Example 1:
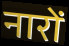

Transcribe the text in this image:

नारों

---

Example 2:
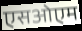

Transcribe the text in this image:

एसओएम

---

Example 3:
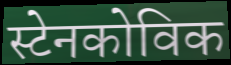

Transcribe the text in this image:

स्टेनकोविक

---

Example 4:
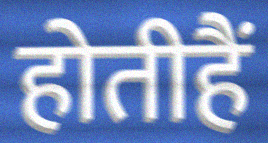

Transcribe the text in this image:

होतीहैं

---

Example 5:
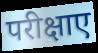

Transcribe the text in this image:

परीक्षाए